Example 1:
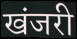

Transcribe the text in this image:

खंजरी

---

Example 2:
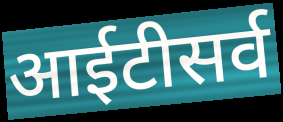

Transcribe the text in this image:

आईटीसर्व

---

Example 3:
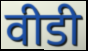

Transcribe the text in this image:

वीडी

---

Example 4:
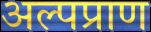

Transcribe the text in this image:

अल्पप्राण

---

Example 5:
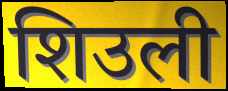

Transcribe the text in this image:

शिउली